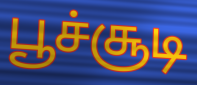
பூச்சூடி